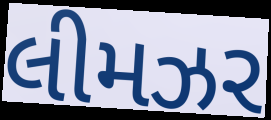
લીમઝર